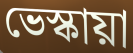
ভেস্কায়া